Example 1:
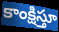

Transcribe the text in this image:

కాంక్షిస్తూ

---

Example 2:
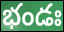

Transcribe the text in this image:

భండః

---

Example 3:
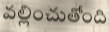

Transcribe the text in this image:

వల్లించుతోంది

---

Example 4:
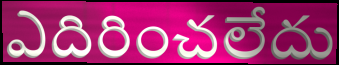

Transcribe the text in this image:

ఎదిరించలేదు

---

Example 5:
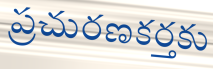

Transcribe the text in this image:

ప్రచురణకర్తకు